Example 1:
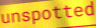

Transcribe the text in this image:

unspotted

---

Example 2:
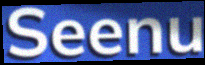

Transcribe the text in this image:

Seenu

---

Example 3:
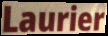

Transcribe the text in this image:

Laurier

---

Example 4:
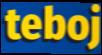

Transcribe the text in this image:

teboj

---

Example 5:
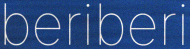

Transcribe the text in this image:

beriberi